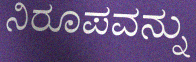
ನಿರೂಪವನ್ನು